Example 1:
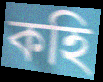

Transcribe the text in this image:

কহি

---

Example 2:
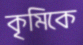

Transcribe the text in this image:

কৃমিকে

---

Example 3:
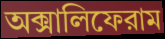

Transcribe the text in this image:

অক্সালিফেরাম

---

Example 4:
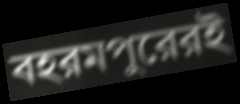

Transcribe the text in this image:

বহরমপুরেরই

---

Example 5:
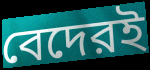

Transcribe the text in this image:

বেদেরই